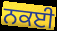
ਨਕਈ